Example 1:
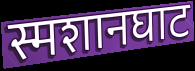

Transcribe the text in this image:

स्मशानघाट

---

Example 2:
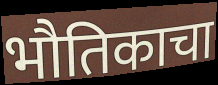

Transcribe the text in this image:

भौतिकाचा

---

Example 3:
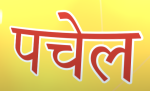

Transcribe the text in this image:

पचेल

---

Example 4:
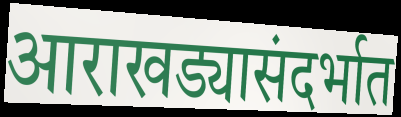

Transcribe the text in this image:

आराखड्यासंदर्भात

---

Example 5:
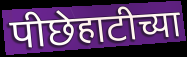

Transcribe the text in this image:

पीछेहाटीच्या